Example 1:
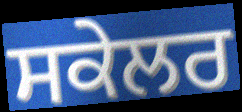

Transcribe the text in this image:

ਸਕੇਲਰ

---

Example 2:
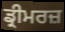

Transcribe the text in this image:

ਡ੍ਰੀਮਰਜ਼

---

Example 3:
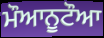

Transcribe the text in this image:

ਮੌਆਨੂਟੌਆ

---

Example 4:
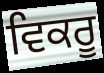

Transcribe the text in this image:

ਵਿਕਰੂ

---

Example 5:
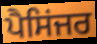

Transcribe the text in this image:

ਪੈਸਿਂਜਰ